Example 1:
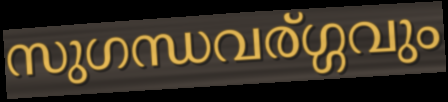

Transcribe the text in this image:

സുഗന്ധവര്ഗ്ഗവും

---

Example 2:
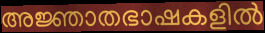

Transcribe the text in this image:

അജ്ഞാതഭാഷകളിൽ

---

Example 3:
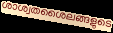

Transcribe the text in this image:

ശാശ്വതശൈലങ്ങളുടെ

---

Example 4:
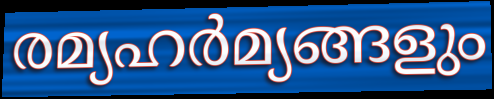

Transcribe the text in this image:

രമ്യഹർമ്യങ്ങളും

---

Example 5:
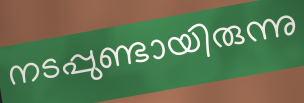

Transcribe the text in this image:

നടപ്പുണ്ടായിരുന്നു